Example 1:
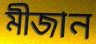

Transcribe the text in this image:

মীজান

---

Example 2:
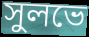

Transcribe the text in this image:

সুলভে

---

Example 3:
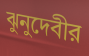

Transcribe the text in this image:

ঝুনুদেবীর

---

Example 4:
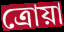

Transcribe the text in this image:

ত্রোয়া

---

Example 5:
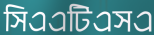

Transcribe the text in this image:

সিএএটিএসএ